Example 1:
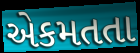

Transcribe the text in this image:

એકમતતા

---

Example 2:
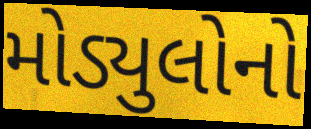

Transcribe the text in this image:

મોડ્યુલોનો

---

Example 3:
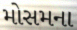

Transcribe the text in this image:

મોસમના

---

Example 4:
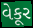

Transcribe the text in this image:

વેકૂર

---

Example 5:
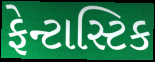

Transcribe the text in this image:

ફેન્ટાસ્ટિક